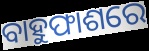
ବାହୁଫାଶରେ